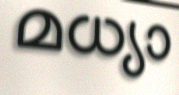
മധ്യാ